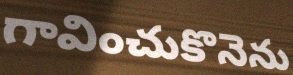
గావించుకొనెను